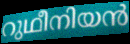
റുഥീനിയൻ